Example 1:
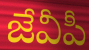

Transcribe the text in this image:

జేవీపీ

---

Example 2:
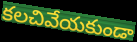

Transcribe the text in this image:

కలచివేయకుండా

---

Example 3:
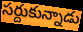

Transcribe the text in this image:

సర్దుకున్నాడు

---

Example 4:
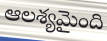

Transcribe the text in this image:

ఆలశ్యమైంది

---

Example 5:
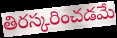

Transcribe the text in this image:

తిరస్కరించడమే